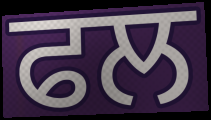
ਫਲ